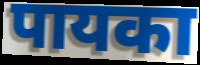
पायका